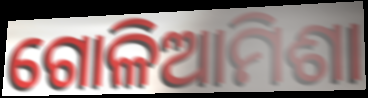
ଗୋଳିଆମିଶା